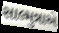
સાલ્મુન્નાએ